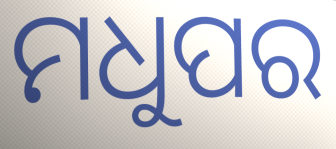
ମଧୁପର